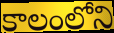
కాలంలోని